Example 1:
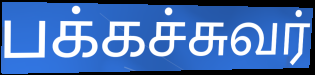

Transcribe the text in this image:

பக்கச்சுவர்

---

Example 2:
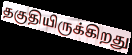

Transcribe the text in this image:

தகுதியிருக்கிறது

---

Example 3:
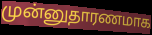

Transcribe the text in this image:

முன்னுதாரணமாக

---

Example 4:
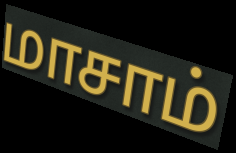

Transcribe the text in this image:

மாசாம்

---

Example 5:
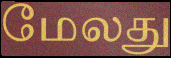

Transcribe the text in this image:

மேலது